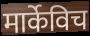
मार्केविच